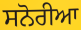
ਸਨੋਰੀਆ